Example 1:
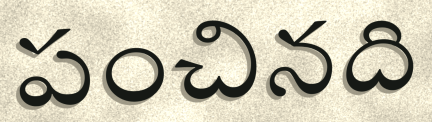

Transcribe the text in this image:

పంచినది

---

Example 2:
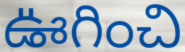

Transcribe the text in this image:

ఊగించి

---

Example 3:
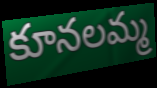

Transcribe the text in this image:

కూనలమ్మ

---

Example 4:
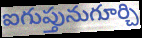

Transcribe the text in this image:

ఐగుప్తునుగూర్చి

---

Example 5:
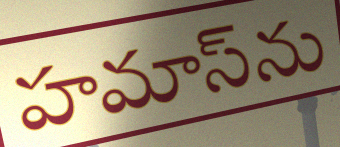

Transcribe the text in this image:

హమాస్‌ను